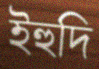
ইহুদি